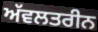
ਅੱਵਲਤਰੀਨ